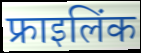
फ्राइलिंक